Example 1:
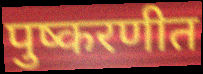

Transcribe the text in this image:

पुष्करणीत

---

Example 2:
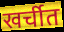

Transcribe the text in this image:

खर्चीत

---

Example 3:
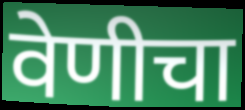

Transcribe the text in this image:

वेणीचा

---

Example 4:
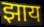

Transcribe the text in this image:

झाय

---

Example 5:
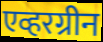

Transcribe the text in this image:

एव्हरग्रीन